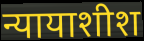
न्यायाशीश